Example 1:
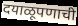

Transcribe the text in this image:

दयाळूपणाची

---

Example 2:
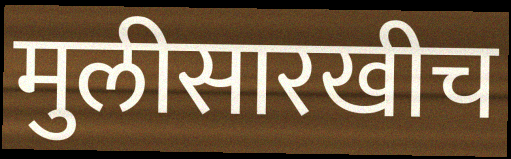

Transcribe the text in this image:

मुलीसारखीच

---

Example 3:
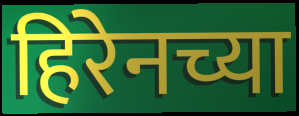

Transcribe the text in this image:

हिरेनच्या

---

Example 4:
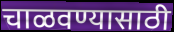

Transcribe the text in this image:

चाळवण्यासाठी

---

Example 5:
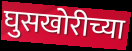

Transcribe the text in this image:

घुसखोरीच्या